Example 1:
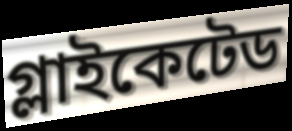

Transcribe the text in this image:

গ্লাইকেটেড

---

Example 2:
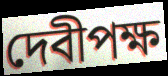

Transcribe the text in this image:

দেবীপক্ষ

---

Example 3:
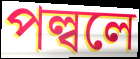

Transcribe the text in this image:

পল্বলে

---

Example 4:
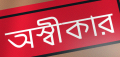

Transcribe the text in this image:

অস্বীকার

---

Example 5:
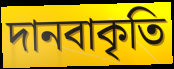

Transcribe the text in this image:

দানবাকৃতি